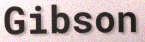
Gibson